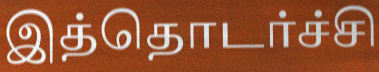
இத்தொடர்ச்சி